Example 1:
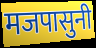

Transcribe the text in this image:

मजपासुनी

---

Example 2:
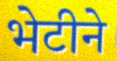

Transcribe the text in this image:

भेटीने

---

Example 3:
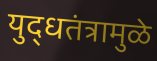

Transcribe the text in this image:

युद्धतंत्रामुळे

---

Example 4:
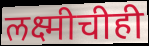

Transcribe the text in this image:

लक्ष्मीचीही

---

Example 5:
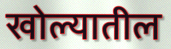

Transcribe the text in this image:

खोल्यातील